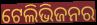
ଟେଲିଭିଜନର